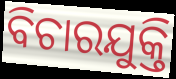
ବିଚାରଯୁକ୍ତି